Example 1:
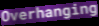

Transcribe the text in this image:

Overhanging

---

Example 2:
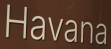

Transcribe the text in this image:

Havana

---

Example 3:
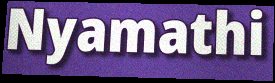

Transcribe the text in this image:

Nyamathi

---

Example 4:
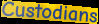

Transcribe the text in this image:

Custodians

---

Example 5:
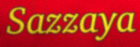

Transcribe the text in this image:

Sazzaya